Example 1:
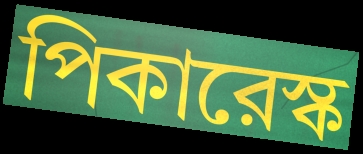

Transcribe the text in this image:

পিকারেস্ক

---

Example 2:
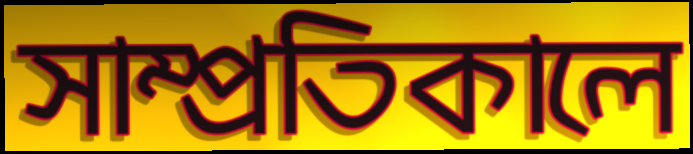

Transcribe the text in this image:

সাম্প্রতিকালে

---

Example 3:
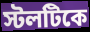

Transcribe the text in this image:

স্টলটিকে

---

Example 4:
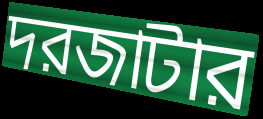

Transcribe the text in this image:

দরজাটার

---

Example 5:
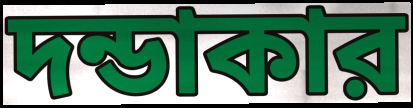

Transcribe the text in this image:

দন্ডাকার